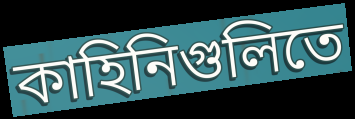
কাহিনিগুলিতে